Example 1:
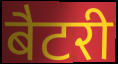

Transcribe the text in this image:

बैटरी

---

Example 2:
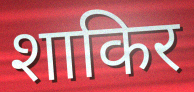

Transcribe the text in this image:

शाकिर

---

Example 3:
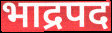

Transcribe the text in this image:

भाद्रपद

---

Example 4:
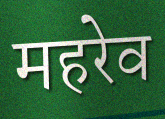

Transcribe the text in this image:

महरेव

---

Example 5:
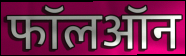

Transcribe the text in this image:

फॉलऑन